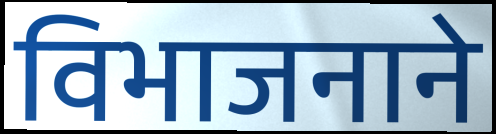
विभाजनाने